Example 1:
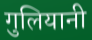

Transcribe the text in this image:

गुलियानी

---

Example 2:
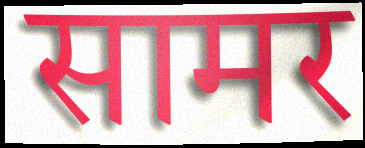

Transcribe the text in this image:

सामर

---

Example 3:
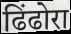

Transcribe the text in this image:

ढिंढोरा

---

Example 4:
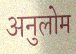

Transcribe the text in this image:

अनुलोम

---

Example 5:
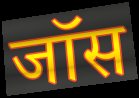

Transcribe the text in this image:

जॉस